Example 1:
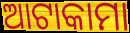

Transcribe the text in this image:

ଆଟାକାମା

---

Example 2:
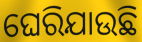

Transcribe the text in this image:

ଘେରିଯାଉଛି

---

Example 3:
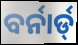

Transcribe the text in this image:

ବର୍ନାର୍ଡ୍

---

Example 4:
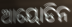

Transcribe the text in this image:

ଆୟୋଡିନ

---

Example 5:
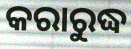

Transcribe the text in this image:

କରାରୁଦ୍ଧ